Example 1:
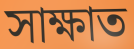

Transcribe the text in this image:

সাক্ষাত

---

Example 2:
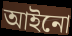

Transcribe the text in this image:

আইনো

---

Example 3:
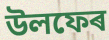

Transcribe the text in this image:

উলফেৰ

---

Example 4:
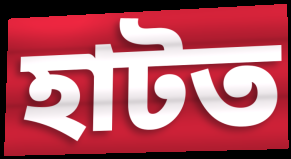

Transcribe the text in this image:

হাটত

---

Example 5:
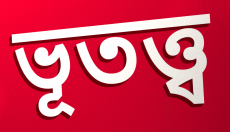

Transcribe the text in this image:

ভূতত্ত্ব